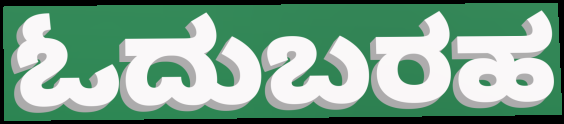
ಓದುಬರಹ